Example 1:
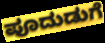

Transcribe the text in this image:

ಪೂದುಡುಗೆ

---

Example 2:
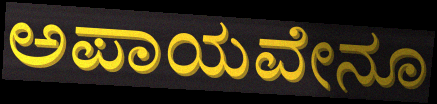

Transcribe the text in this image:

ಅಪಾಯವೇನೂ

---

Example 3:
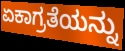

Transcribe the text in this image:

ಏಕಾಗ್ರತೆಯನ್ನು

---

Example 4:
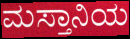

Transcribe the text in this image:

ಮಸ್ತಾನಿಯ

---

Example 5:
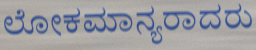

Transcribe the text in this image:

ಲೋಕಮಾನ್ಯರಾದರು